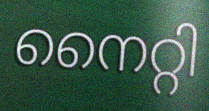
നൈറ്റി